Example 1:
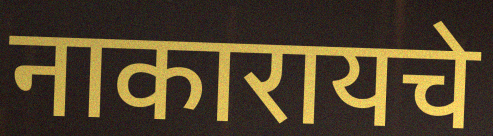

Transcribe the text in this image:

नाकारायचे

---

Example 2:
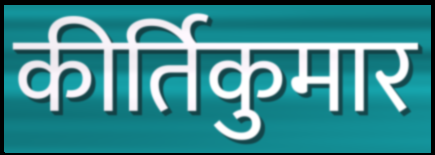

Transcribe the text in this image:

कीर्तिकुमार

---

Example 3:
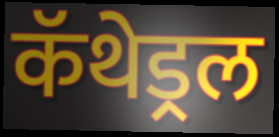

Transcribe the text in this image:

कॅथेड्रल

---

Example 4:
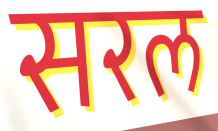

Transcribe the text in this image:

सरल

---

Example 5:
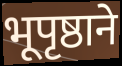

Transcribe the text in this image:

भूपृष्ठाने